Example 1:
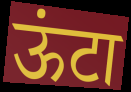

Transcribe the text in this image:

ऊंटा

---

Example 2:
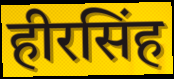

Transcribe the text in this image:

हीरसिंह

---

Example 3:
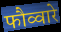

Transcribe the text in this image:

फौव्वारे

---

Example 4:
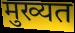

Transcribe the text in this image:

मुख्‍यत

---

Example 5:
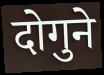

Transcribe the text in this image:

दोगुने